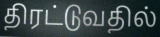
திரட்டுவதில்